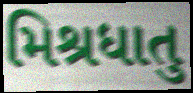
મિશ્રધાતુ